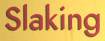
Slaking